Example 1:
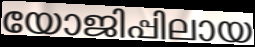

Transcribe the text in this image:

യോജിപ്പിലായ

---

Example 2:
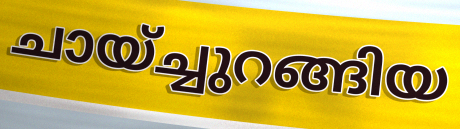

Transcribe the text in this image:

ചായ്ച്ചുറങ്ങിയ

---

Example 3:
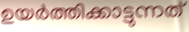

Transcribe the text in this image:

ഉയർത്തിക്കാട്ടുന്നത്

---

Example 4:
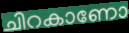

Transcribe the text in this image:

ചിറകാണോ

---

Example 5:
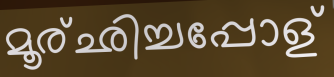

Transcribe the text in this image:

മൂര്ഛിച്ചപ്പോള്